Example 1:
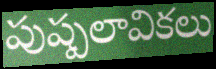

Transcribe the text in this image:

పుష్పలావికలు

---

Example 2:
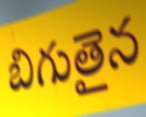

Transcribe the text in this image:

బిగుతైన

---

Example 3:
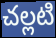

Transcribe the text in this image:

చల్లటి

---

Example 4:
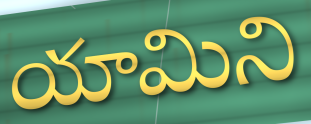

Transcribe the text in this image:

యామిని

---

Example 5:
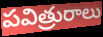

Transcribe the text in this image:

పవిత్రురాలు